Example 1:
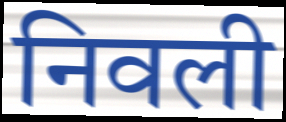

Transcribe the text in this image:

निवली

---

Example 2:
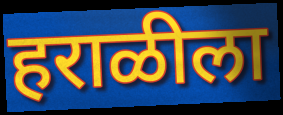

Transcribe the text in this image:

हराळीला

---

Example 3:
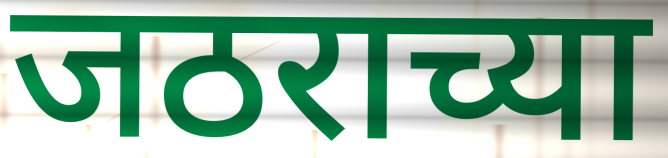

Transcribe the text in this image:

जठराच्या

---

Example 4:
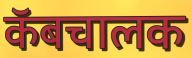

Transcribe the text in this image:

कॅबचालक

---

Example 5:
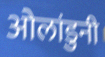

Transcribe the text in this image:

ओलांडुनी